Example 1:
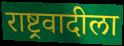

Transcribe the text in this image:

राष्ट्रवादीला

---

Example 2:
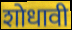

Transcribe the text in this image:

शोधावी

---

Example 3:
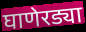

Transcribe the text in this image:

घाणेरड्या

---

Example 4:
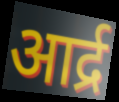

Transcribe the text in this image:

आर्द्र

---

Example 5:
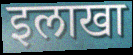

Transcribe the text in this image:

इलाखा